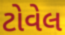
ટોવેલ